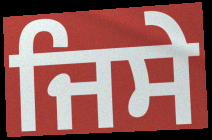
ਜਿਸੇ